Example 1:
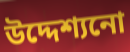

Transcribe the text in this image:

উদ্দেশ্যনো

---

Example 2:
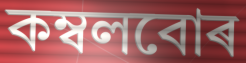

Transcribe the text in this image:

কম্বলবোৰ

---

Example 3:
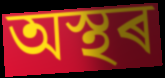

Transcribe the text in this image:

অস্থৰ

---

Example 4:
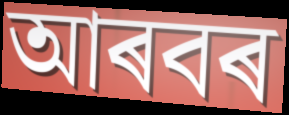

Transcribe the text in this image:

আৰবৰ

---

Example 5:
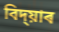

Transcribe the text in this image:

বিদ্য়াৰ